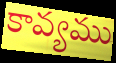
కావ్యము